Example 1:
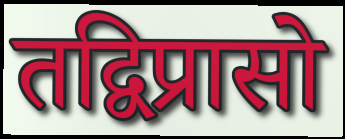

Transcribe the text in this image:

तद्विप्रासो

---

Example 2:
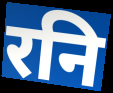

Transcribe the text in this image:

रनि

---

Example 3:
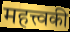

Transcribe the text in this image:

महत्त्वकी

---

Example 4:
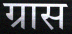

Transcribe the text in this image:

ग्रास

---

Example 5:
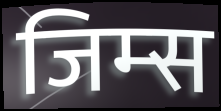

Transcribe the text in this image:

जिम्स